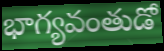
భాగ్యవంతుడో